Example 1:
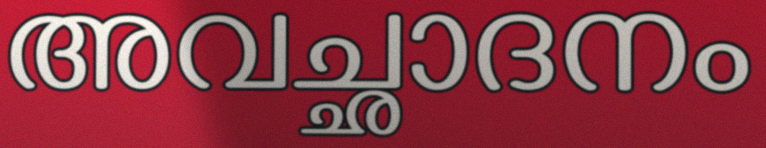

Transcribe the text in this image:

അവച്ഛാദനം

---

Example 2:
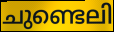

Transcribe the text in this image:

ചുണ്ടെലി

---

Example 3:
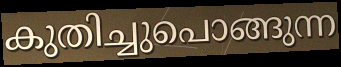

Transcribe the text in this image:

കുതിച്ചുപൊങ്ങുന്ന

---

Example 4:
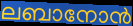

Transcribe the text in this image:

ലബാനോൻ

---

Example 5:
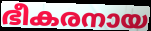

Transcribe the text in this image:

ഭീകരനായ